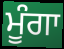
ਮੂੰਗਾ